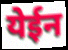
येईन